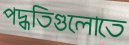
পদ্ধতিগুলোতে